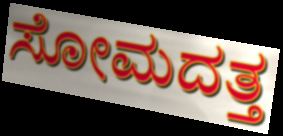
ಸೋಮದತ್ತ